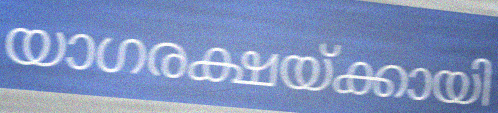
യാഗരക്ഷയ്ക്കായി